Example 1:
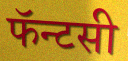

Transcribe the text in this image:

फॅन्टसी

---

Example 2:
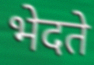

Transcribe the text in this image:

भेदते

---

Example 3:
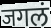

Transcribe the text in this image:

जगलं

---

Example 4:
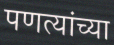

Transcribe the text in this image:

पणत्यांच्या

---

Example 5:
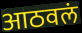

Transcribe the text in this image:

आठवलं